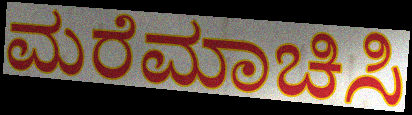
ಮರೆಮಾಚಿಸಿ